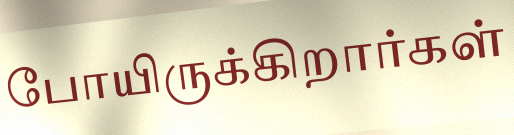
போயிருக்கிறார்கள்